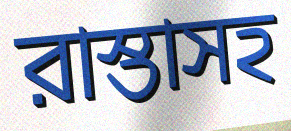
রাস্তাসহ